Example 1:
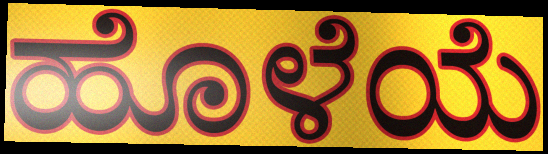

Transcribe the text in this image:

ಹೊಳೆಯೆ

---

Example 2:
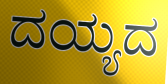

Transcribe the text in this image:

ದಯ್ಯದ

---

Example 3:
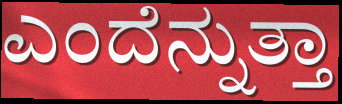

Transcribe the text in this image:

ಎಂದೆನ್ನುತ್ತಾ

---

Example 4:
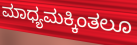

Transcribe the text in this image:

ಮಾಧ್ಯಮಕ್ಕಿಂತಲೂ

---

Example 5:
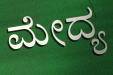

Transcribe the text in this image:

ಮೇದ್ಯ